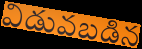
విడువబడిన